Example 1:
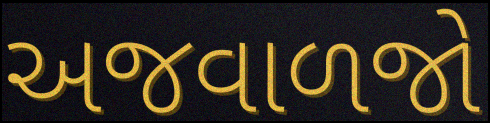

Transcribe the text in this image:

અજવાળજો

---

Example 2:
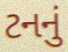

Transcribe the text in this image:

ટનનું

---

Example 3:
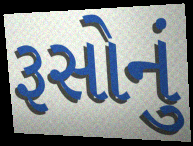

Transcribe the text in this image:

રૂસોનું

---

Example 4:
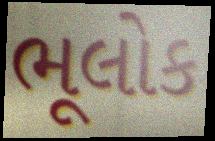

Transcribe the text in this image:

ભૂલોક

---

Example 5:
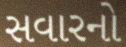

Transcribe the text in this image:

સવારનો